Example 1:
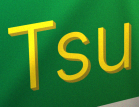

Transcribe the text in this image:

Tsu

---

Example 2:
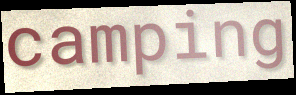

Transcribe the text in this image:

camping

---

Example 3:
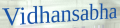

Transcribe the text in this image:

Vidhansabha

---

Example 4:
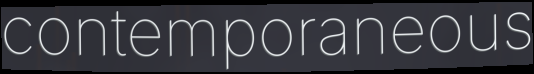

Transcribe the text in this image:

contemporaneous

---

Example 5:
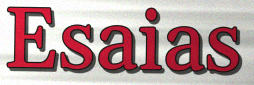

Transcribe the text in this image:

Esaias